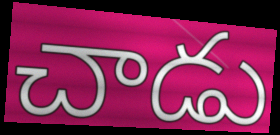
చాడు